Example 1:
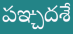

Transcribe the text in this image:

పఞ్చదశే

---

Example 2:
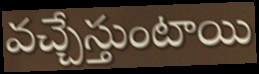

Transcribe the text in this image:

వచ్చేస్తుంటాయి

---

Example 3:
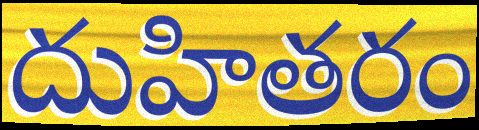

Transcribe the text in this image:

దుహితరం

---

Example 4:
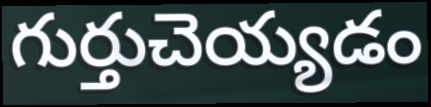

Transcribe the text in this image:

గుర్తుచెయ్యడం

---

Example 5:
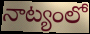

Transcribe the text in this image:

నాట్యంలో